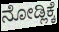
ನೋಡ್ಲಿಕ್ಕೆ